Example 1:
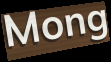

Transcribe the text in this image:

Mong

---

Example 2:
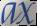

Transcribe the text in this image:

ax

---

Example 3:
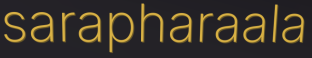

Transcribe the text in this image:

sarapharaala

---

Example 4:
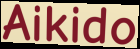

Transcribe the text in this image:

Aikido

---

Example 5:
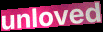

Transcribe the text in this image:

unloved